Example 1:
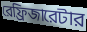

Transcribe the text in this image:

রেফ্রিজারেটার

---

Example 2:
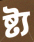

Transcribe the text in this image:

ষ্ট্য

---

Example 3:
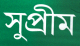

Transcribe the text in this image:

সুপ্রীম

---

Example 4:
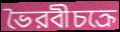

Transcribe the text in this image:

ভৈরবীচক্রে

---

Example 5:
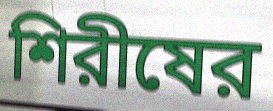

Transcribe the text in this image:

শিরীষের